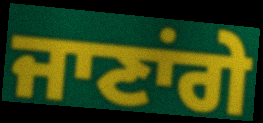
ਜਾਣਾਂਗੇ